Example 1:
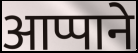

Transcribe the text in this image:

आप्पाने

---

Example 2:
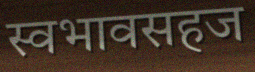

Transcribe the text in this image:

स्वभावसहज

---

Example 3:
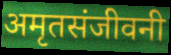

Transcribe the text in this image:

अमृतसंजीवनी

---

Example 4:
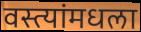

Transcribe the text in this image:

वस्त्यांमधला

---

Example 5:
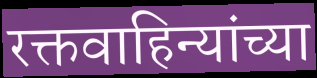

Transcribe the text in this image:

रक्तवाहिन्यांच्या